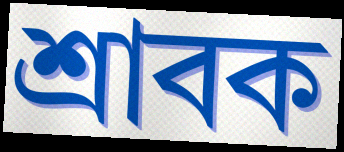
শ্রাবক